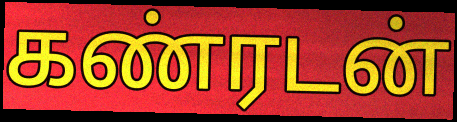
கண்ரடன்